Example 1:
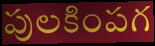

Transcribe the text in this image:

పులకింపగ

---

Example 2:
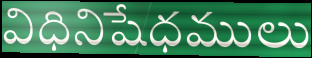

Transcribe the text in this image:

విధినిషేధములు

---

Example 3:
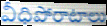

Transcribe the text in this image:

వీధిపోరాటాలు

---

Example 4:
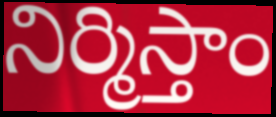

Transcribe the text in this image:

నిర్మిస్తాం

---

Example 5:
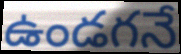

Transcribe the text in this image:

ఉండగనే